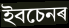
ইবচেনৰ